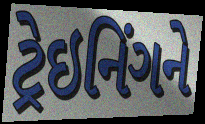
ટ્રેઇનિંગને